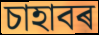
চাহাবৰ